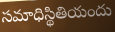
సమాధిస్థితియందు